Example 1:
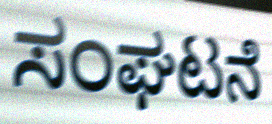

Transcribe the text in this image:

ಸಂಘಟನೆ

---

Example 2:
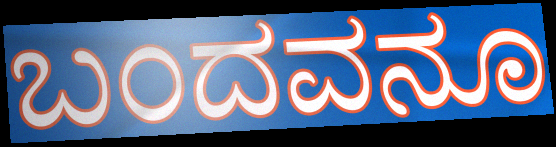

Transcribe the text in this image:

ಬಂದವನೂ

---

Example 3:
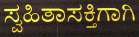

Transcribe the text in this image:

ಸ್ವಹಿತಾಸಕ್ತಿಗಾಗಿ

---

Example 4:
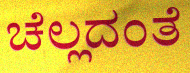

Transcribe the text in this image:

ಚೆಲ್ಲದಂತೆ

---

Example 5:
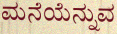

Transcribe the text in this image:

ಮನೆಯೆನ್ನುವ